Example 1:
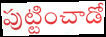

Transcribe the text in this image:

పుట్టించాడో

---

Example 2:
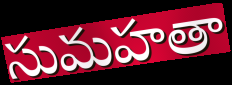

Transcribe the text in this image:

సుమహతా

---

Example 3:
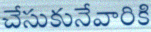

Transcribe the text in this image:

చేసుకునేవారికి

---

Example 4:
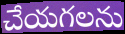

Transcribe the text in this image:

చేయగలను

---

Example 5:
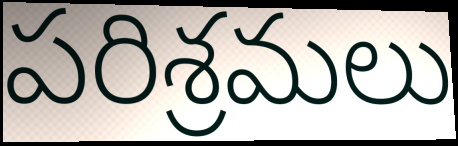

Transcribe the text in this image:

పరిశ్రమలు